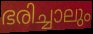
ഭരിച്ചാലും